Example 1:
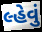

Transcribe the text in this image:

લ્હેવું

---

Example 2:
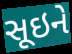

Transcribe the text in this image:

સૂઇને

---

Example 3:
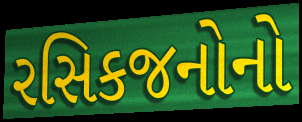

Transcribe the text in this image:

રસિકજનોનો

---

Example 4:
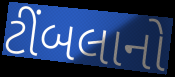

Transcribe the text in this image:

ટીંબલાનો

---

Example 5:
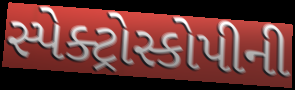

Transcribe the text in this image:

સ્પેક્ટ્રોસ્કોપીની